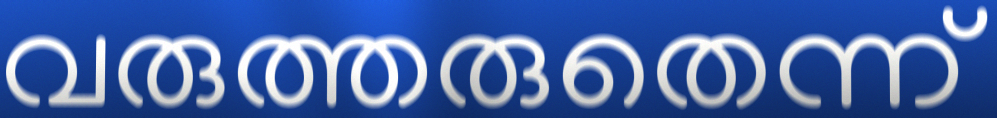
വരുത്തരുതെന്ന്